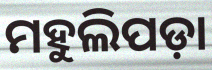
ମହୁଲିପଡ଼ା